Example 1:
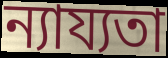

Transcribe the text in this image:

ন্যায্যতা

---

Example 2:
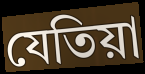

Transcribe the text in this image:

যেতিয়া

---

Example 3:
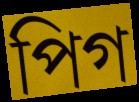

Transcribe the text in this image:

পিগ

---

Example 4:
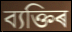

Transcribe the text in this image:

ব্যক্তিৰ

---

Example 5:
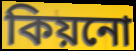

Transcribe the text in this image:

কিয়নো